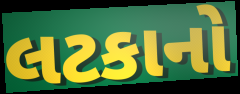
લટકાનો